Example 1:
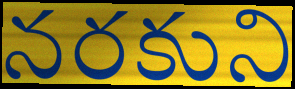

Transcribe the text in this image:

నరకుని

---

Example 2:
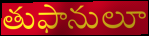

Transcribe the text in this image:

తుఫానులూ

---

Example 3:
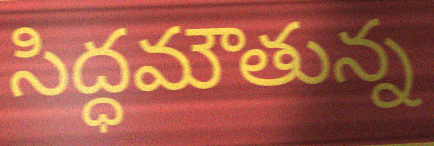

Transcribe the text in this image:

సిద్ధమౌతున్న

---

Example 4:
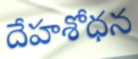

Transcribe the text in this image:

దేహశోధన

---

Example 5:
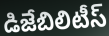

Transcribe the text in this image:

డిజేబిలిటీస్